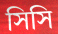
সিসি